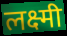
लक्ष्मी